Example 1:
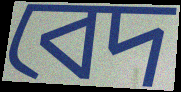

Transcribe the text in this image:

বেদ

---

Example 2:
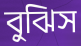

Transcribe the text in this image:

বুঝিস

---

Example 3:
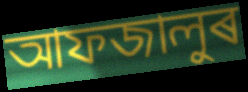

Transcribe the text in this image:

আফজালুৰ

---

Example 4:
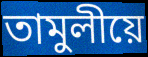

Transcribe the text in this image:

তামুলীয়ে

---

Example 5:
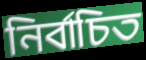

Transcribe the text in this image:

নিৰ্বাচিত